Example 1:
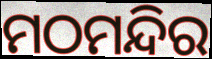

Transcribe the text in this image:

ମଠମନ୍ଦିର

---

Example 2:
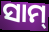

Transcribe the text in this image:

ସାମ୍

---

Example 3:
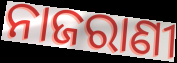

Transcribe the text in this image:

ନାଜରାଣୀ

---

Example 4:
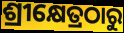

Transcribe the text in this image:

ଶ୍ରୀକ୍ଷେତ୍ରଠାରୁ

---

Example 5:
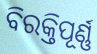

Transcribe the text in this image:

ବିରକ୍ତିପୂର୍ଣ୍ଣ